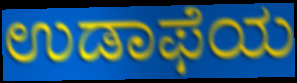
ಉಡಾಫೆಯ